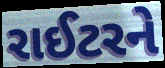
રાઈટરને